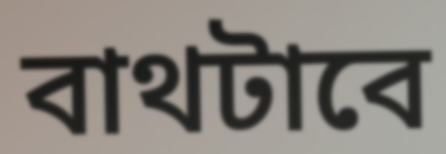
বাথটাবে